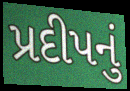
પ્રદીપનું